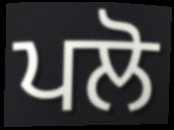
ਪਲੋ